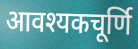
आवश्यकचूर्णि